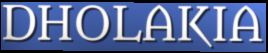
DHOLAKIA